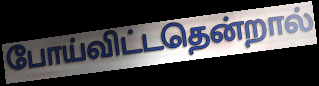
போய்விட்டதென்றால்